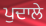
ਪੁਦਾਲੇ